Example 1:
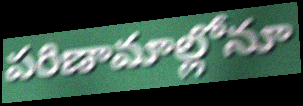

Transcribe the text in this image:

పరిణామాల్లోనూ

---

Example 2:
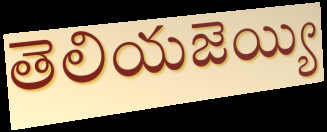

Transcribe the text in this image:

తెలియజెయ్యి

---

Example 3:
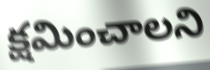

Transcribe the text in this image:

క్షమించాలని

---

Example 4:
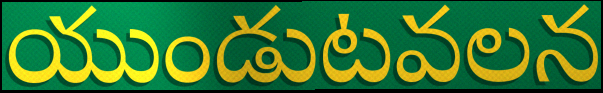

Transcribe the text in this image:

యుండుటవలన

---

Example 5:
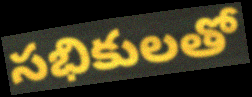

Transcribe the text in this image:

సభికులతో